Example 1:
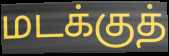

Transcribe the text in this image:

மடக்குத்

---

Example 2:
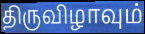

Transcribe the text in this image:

திருவிழாவும்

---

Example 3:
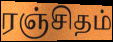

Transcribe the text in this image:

ரஞ்சிதம்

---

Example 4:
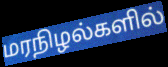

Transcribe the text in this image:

மரநிழல்களில்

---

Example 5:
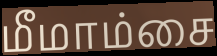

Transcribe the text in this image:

மீமாம்சை